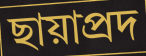
ছায়াপ্রদ